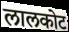
लालकोट